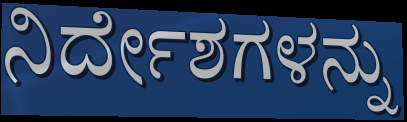
ನಿರ್ದೇಶಗಳನ್ನು